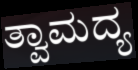
ತ್ವಾಮದ್ಯ